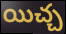
యిచ్చ